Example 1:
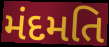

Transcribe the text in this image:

મંદમતિ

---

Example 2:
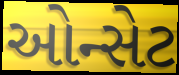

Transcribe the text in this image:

ઓન્સેટ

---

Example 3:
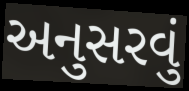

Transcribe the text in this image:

અનુસરવું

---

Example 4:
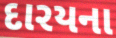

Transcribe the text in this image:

દારયના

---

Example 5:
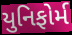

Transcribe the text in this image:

યુનિફોર્મ